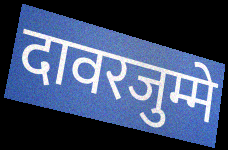
दावरजुम्मे